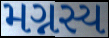
મગ્નસ્ય